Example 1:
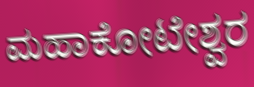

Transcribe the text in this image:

ಮಹಾಕೋಟೇಶ್ವರ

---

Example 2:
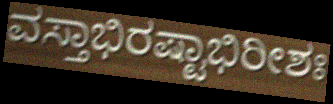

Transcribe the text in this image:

ವಸ್ತಾಭಿರಷ್ಟಾಭಿರೀಶಃ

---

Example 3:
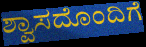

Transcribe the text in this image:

ಶ್ವಾಸದೊಂದಿಗೆ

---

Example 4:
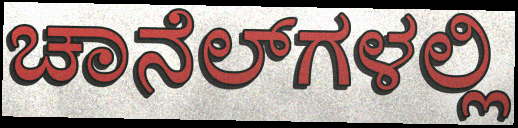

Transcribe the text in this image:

ಚಾನೆಲ್‍ಗಳಲ್ಲಿ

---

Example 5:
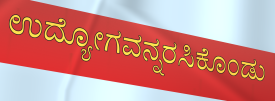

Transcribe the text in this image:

ಉದ್ಯೋಗವನ್ನರಸಿಕೊಂಡು